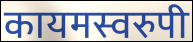
कायमस्वरुपी